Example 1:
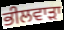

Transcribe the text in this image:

ਭੀਲਵਾੜਾ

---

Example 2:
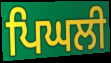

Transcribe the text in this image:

ਪਿਘਲੀ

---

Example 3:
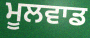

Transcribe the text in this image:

ਮੂਲਵਾਡ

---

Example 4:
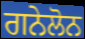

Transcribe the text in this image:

ਗਨੇਲੋਨ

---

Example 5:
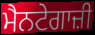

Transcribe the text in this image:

ਮੈਨਟੇਗਾਜ਼ੀ